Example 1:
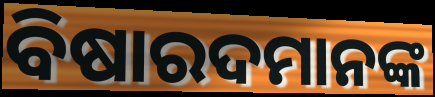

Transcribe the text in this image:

ବିଷାରଦମାନଙ୍କ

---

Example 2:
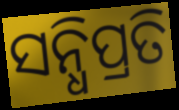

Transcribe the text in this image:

ସନ୍ଧିପ୍ରତି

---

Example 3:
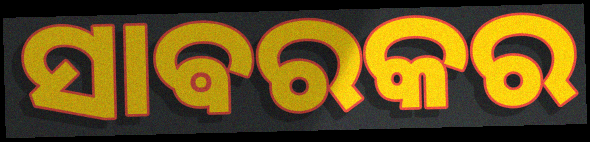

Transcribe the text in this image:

ସାଵରକର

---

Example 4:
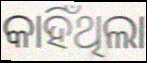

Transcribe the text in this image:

କାହିଁଥିଲା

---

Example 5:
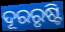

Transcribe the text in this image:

ଦୂରରୃଷ୍ଟି